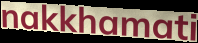
nakkhamati